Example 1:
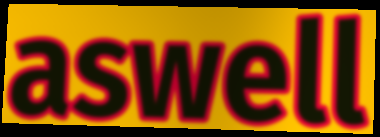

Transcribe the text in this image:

aswell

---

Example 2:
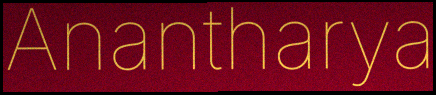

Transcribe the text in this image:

Anantharya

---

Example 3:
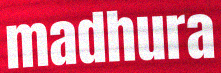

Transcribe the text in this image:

madhura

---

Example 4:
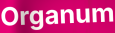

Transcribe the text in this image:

Organum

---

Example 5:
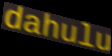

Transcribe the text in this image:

dahulu